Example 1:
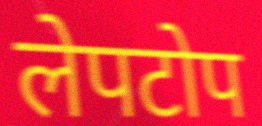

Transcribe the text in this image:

लेपटोप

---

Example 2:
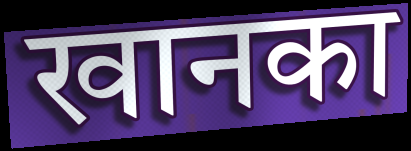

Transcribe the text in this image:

खानका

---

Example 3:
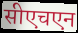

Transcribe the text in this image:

सीएचएन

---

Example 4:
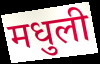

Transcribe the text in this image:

मधुली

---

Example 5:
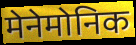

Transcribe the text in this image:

मेनेमोनिक